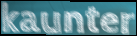
kaunter